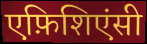
एफ़िशिएंसी